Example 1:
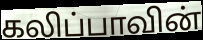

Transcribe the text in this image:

கலிப்பாவின்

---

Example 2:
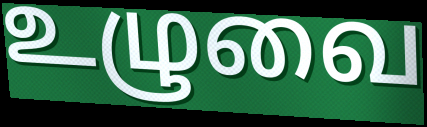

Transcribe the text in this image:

உழுவை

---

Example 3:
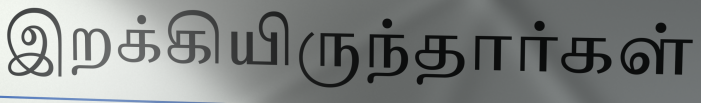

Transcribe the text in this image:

இறக்கியிருந்தார்கள்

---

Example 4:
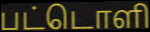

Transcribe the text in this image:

பட்டொளி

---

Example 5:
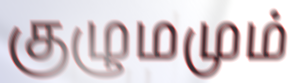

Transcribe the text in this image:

குழுமமும்